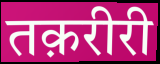
तक़रीरी